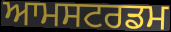
ਆਮਸਟਰਡਮ